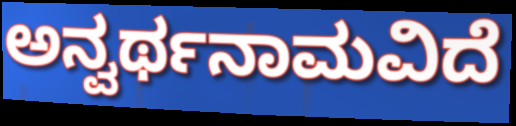
ಅನ್ವರ್ಥನಾಮವಿದೆ